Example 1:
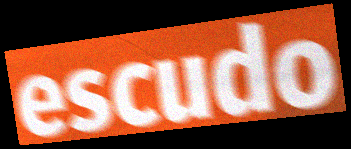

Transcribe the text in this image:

escudo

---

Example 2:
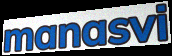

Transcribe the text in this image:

manasvi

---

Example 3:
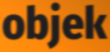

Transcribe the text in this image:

objek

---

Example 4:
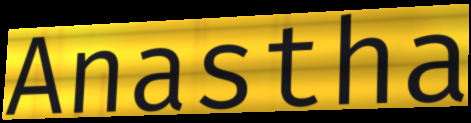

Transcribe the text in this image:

Anastha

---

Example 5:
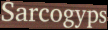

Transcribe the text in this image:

Sarcogyps